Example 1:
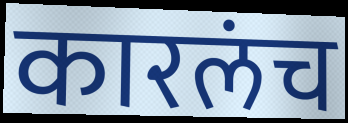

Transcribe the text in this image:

कारलंच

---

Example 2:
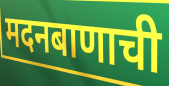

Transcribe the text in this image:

मदनबाणाची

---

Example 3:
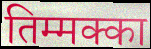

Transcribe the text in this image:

तिम्मक्का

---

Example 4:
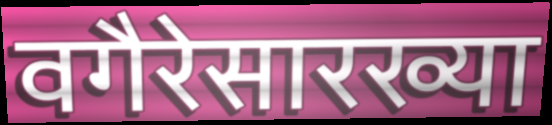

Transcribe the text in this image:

वगैरेसारख्या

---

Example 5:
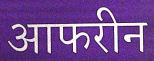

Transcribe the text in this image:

आफरीन